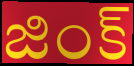
జింక్